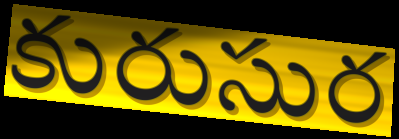
కురుసుర